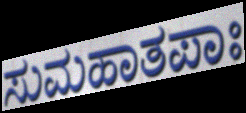
ಸುಮಹಾತಪಾಃ